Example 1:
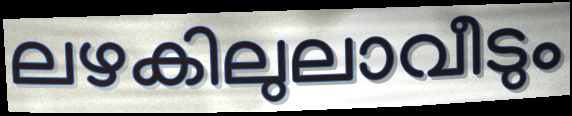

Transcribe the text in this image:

ലഴകിലുലാവീടും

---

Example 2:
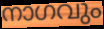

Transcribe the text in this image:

നാഗവും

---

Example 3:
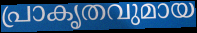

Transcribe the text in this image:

പ്രാകൃതവുമായ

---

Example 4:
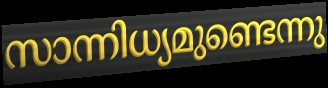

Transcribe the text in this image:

സാന്നിധ്യമുണ്ടെന്നു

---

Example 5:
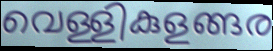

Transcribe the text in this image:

വെള്ളികുളങ്ങര